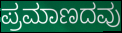
ಪ್ರಮಾಣದವು